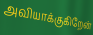
அவியாக்குகிறேன்